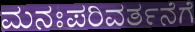
ಮನಃಪರಿವರ್ತನೆಗೆ